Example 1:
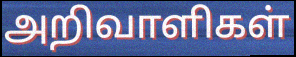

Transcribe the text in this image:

அறிவாளிகள்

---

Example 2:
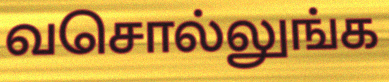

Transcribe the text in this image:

வசொல்லுங்க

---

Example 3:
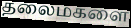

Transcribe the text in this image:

தலைமகளை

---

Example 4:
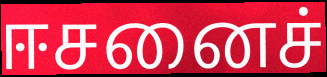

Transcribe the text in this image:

ஈசனைச்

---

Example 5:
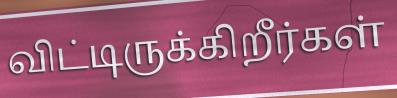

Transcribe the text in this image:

விட்டிருக்கிறீர்கள்